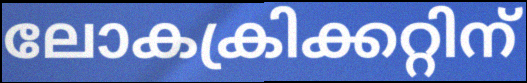
ലോകക്രിക്കറ്റിന്